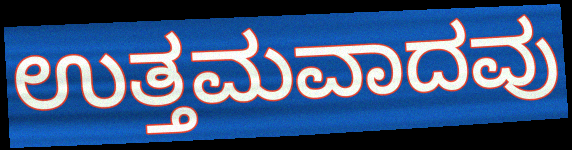
ಉತ್ತಮವಾದವು